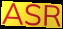
ASR